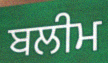
ਬਲੀਮ